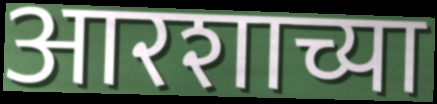
आरशाच्या